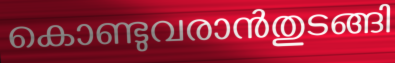
കൊണ്ടുവരാൻതുടങ്ങി